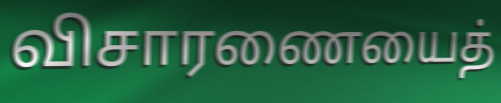
விசாரணையைத்